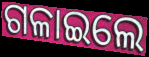
ଗଳାଇଲେ